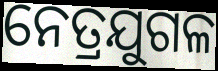
ନେତ୍ରଯୁଗଳ